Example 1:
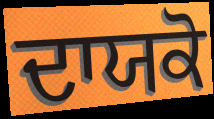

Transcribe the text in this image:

ਦਾਯਕੋ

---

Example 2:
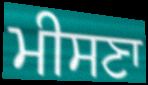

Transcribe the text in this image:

ਮੀਸਣਾ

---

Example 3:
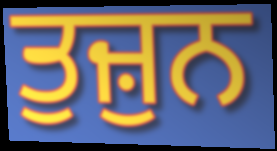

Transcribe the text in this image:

ਤੁਜ਼ੁਨ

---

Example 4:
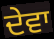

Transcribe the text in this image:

ਦੇਵਾ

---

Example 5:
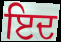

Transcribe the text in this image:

ਇਦ